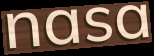
nasa